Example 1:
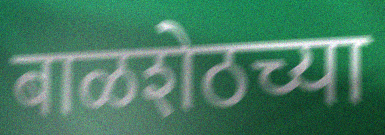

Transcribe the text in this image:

बाळशेठच्या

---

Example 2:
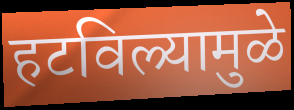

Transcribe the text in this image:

हटविल्यामुळे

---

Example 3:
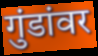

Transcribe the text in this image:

गुंडांवर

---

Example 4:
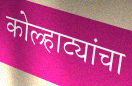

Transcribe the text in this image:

कोल्हाट्यांचा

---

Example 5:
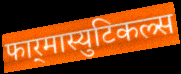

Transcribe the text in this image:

फार्मास्युटिकल्स